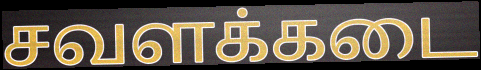
சவளக்கடை